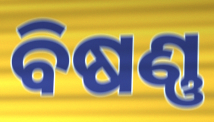
ବିଷଣ୍ଣ